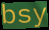
bsy